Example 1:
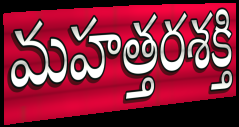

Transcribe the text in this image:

మహత్తరశక్తి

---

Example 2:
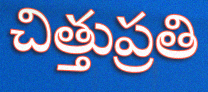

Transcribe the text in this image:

చిత్తుప్రతి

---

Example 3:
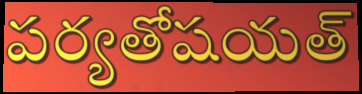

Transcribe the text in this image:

పర్యతోషయత్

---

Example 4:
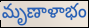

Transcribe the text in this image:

మృణాళాభం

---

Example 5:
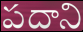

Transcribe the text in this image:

పదాని